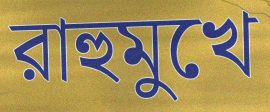
রাহুমুখে